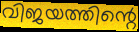
വിജയത്തിന്റെ